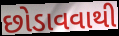
છોડાવવાથી